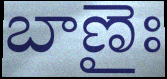
బాణైః